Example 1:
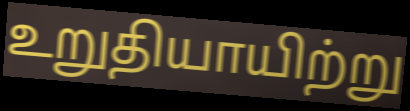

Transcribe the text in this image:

உறுதியாயிற்று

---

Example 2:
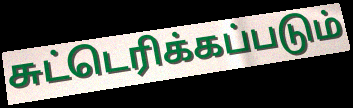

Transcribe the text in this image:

சுட்டெரிக்கப்படும்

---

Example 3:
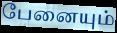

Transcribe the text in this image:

பேனையும்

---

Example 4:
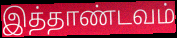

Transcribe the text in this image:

இத்தாண்டவம்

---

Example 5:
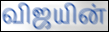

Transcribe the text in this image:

விஜயின்